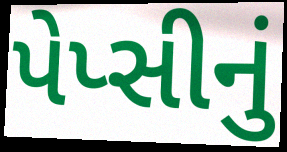
પેપ્સીનું